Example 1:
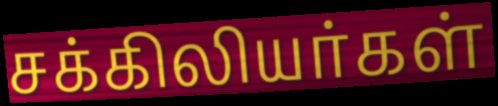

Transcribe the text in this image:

சக்கிலியர்கள்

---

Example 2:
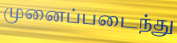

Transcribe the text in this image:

முனைப்படைந்து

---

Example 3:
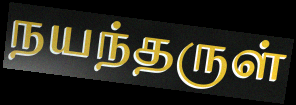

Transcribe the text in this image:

நயந்தருள்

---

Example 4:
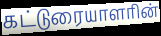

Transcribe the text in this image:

கட்டுரையாளரின்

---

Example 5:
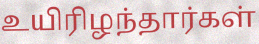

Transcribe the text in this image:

உயிரிழந்தார்கள்